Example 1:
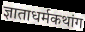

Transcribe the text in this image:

ज्ञाताधर्मकथांग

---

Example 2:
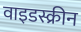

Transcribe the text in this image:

वाइडस्क्रीन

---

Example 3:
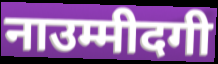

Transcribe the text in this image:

नाउम्मीदगी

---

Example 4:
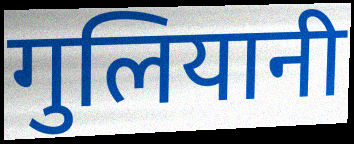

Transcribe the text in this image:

गुलियानी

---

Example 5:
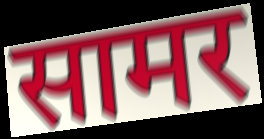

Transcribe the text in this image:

सामर